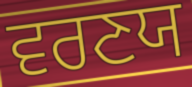
ਵਰਣਯ